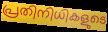
പ്രതിനിധികളുടെ